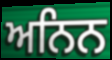
ਅਨਿਨ